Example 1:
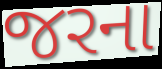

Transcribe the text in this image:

જરના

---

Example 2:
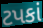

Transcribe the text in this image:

ટપકાં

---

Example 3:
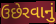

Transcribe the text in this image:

ઉછેરવાનું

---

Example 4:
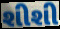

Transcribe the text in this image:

શીશી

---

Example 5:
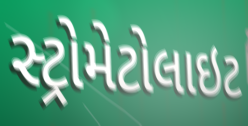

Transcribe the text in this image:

સ્ટ્રોમેટોલાઇટ